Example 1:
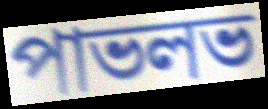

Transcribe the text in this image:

পাভলভ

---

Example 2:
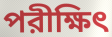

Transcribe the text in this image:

পরীক্ষিৎ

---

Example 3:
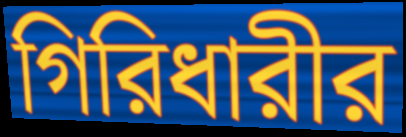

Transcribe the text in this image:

গিরিধারীর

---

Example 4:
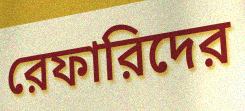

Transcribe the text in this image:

রেফারিদের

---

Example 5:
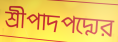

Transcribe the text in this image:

শ্রীপাদপদ্মের